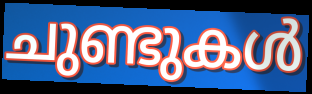
ചുണ്ടുകൾ